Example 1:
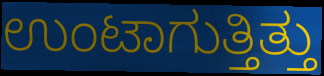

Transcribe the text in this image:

ಉಂಟಾಗುತ್ತಿತ್ತು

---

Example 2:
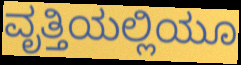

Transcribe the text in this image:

ವೃತ್ತಿಯಲ್ಲಿಯೂ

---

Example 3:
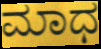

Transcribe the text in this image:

ಮಾಧ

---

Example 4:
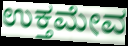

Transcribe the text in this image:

ಉಕ್ತಮೇವ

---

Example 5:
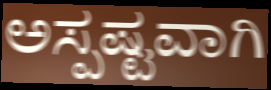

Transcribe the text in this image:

ಅಸ್ಪಷ್ಟವಾಗಿ